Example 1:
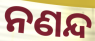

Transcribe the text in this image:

ନଣନ୍ଦ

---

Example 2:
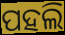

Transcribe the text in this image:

ପହଲି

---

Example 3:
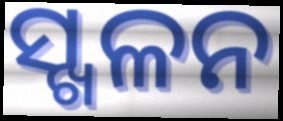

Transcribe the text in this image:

ସ୍ଖଳନ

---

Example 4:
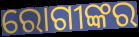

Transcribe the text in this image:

ରୋଗୀଙ୍କର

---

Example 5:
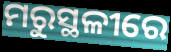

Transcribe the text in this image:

ମରୁସ୍ଥଳୀରେ